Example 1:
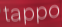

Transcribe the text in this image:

tappo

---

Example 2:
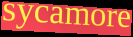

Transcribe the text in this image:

sycamore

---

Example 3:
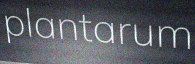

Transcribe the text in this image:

plantarum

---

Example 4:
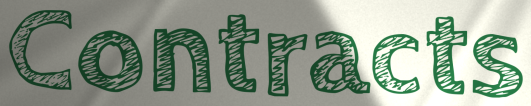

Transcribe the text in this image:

Contracts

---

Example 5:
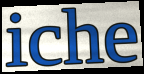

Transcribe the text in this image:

iche